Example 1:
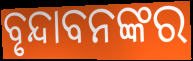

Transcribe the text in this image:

ବୃନ୍ଦାବନଙ୍କର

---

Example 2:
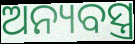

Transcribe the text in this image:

ଅନ୍ୟବସ୍ତ୍ର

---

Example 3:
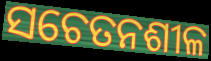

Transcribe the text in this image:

ସଚେତନଶୀଳ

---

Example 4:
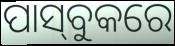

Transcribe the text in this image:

ପାସ୍‌ବୁକରେ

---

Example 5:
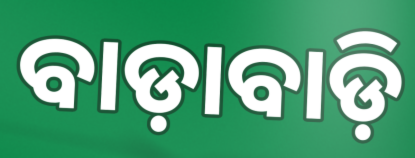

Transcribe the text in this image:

ବାଡ଼ାବାଡ଼ି